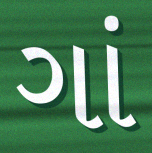
ગાં